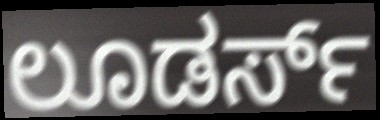
ಲೂಡರ್ಸ್